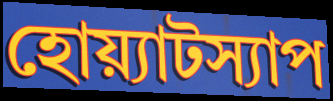
হোয়্যাটস্যাপ